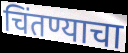
चिंतण्याचा